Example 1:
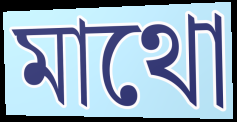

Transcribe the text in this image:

মাথো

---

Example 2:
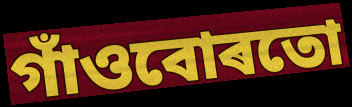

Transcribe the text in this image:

গাঁওবোৰতো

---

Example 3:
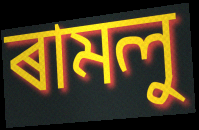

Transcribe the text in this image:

ৰামলু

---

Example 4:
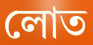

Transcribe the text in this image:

লোত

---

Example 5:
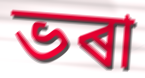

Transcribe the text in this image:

ভৰা